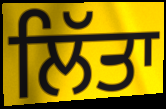
ਲਿੱਤਾ